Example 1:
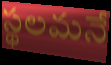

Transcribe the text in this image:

స్థలమనే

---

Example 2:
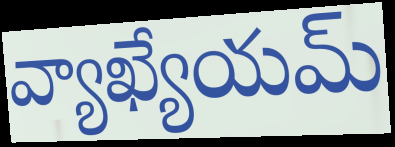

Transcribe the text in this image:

వ్యాఖ్యేయమ్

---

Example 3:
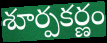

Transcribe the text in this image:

శూర్పకర్ణం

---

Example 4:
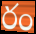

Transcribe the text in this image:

రం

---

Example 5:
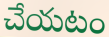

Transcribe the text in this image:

చేయటం